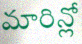
మారిన్లో